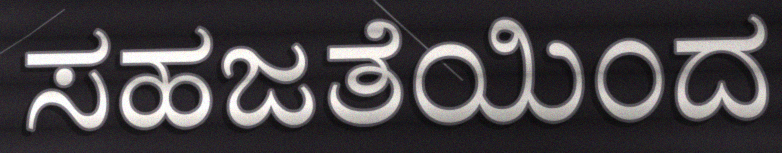
ಸಹಜತೆಯಿಂದ